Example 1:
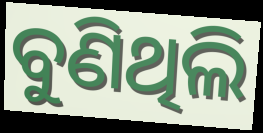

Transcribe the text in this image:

ବୁଣିଥିଲି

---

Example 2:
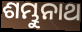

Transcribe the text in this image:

ଶମ୍ଭୁନାଥ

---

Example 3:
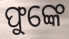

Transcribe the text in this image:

ଫୁଙ୍କେ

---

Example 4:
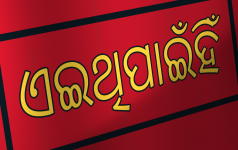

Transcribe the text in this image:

ଏଇଥିପାଇଁହିଁ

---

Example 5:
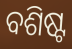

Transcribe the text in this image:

ବଶିଷ୍ଟ